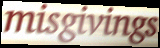
misgivings